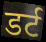
डर्ट